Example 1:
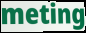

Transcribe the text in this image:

meting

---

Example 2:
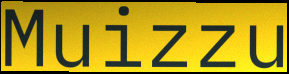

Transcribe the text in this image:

Muizzu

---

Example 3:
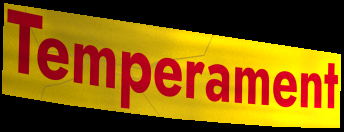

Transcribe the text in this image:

Temperament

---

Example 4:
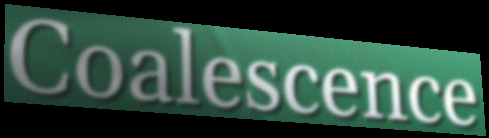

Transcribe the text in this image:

Coalescence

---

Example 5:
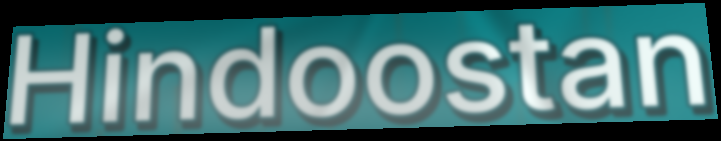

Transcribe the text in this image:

Hindoostan